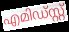
എമിഡ്സ്റ്റ്